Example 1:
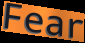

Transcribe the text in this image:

Fear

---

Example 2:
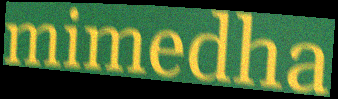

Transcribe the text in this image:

mimedha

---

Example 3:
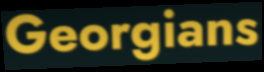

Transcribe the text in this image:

Georgians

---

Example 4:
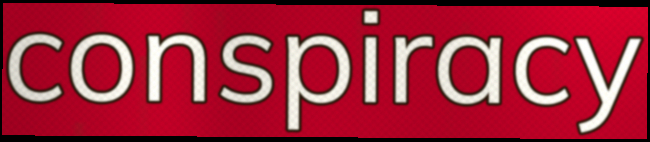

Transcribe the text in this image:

conspiracy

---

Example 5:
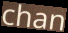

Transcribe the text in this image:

chan